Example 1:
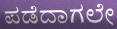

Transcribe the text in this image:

ಪಡೆದಾಗಲೇ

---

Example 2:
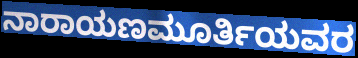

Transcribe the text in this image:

ನಾರಾಯಣಮೂರ್ತಿಯವರ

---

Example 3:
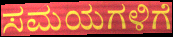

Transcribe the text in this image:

ಸಮಯಗಳಿಗೆ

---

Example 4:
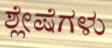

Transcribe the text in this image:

ಶ್ಲೇಷೆಗಳು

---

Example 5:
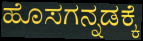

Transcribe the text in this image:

ಹೊಸಗನ್ನಡಕ್ಕೆ